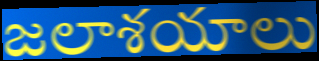
జలాశయాలు